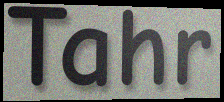
Tahr